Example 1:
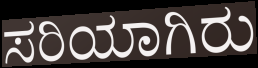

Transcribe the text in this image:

ಸರಿಯಾಗಿರು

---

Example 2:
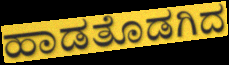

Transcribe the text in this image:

ಹಾಡತೊಡಗಿದ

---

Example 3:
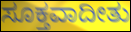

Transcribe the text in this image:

ಸೂಕ್ತವಾದೀತು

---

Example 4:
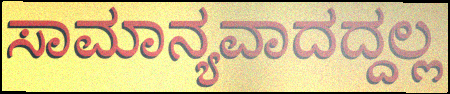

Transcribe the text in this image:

ಸಾಮಾನ್ಯವಾದದ್ದಲ್ಲ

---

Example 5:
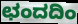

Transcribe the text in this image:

ಛಂದದಿಂ